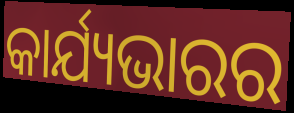
କାର୍ଯ୍ୟଭାରର